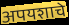
अपयशाचे